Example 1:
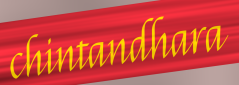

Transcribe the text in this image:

chintandhara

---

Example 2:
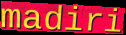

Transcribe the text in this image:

madiri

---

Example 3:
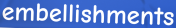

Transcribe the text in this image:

embellishments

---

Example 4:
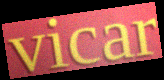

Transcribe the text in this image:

vicar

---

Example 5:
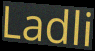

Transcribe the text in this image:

Ladli